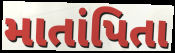
માતાંપિતા